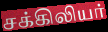
சக்கிலியர்